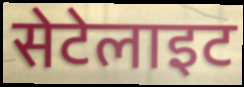
सेटेलाइट